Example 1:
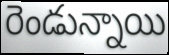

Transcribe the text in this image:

రెండున్నాయి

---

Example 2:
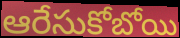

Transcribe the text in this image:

ఆరేసుకోబోయి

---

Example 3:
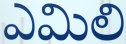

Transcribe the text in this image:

ఎమిలి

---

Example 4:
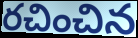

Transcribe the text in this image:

రచించిన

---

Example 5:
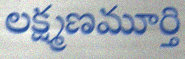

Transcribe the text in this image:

లక్ష్మణమూర్తి